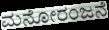
ಮನೋರಂಜನೆ